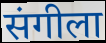
संगीला